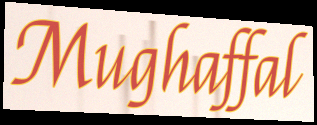
Mughaffal